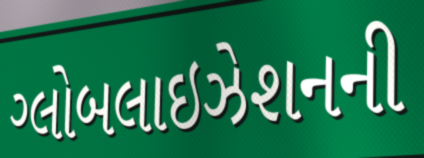
ગ્લોબલાઇઝેશનની